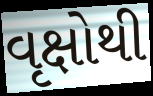
વૃક્ષોથી